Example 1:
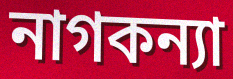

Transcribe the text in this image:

নাগকন্যা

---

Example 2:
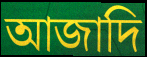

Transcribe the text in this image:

আজাদি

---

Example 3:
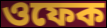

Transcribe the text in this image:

ওফেক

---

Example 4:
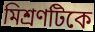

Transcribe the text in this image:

মিশ্রণটিকে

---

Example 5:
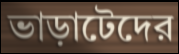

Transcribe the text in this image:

ভাড়াটেদের